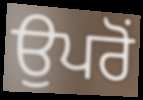
ਉਪਰੋਂ